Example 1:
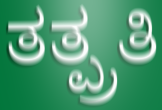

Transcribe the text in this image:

ತತ್ಪ್ರತಿ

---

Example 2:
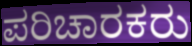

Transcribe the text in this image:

ಪರಿಚಾರಕರು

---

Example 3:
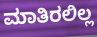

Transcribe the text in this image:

ಮಾತಿರಲಿಲ್ಲ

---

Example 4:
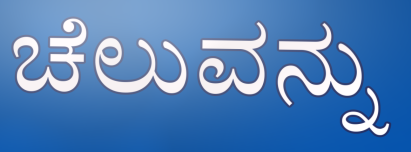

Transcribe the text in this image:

ಚೆಲುವನ್ನು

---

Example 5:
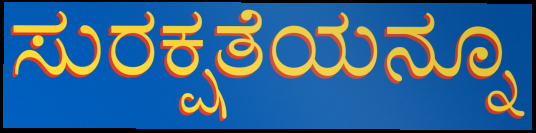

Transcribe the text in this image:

ಸುರಕ್ಷತೆಯನ್ನೂ